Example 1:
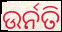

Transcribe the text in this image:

ଉର୍ନତି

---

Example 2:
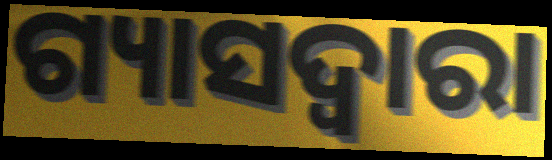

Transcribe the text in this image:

ଗ୍ୟାସଦ୍ଵାରା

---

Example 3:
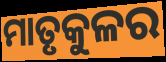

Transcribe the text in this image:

ମାତୃକୁଳର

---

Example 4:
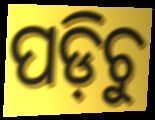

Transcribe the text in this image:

ପଡ଼ିଚୁ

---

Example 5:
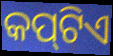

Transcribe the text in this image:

କପ୍‍ଟିଏ